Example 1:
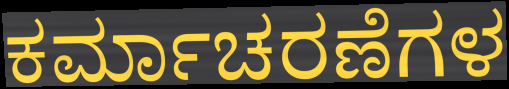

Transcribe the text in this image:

ಕರ್ಮಾಚರಣೆಗಳ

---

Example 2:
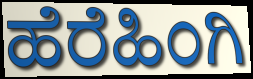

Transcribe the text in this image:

ಹೆರೆಹಿಂಗಿ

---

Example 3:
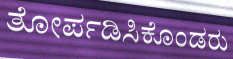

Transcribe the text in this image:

ತೋರ್ಪಡಿಸಿಕೊಂಡರು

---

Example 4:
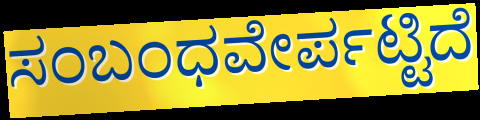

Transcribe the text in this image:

ಸಂಬಂಧವೇರ್ಪಟ್ಟಿದೆ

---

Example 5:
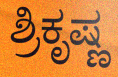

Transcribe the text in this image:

ಶ್ರಿಕೃಷ್ಣ